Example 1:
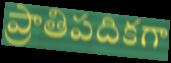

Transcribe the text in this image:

ప్రాతిపదికగా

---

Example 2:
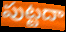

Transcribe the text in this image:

పుట్టదా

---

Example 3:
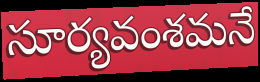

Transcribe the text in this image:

సూర్యవంశమనే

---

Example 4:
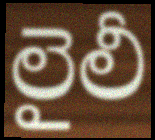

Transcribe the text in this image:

లైలీ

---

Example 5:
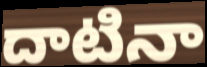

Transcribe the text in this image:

దాటినా